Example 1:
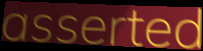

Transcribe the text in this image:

asserted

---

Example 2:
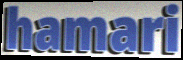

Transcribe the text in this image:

hamari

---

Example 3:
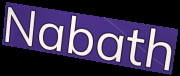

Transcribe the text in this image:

Nabath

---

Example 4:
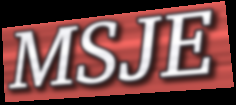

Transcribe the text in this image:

MSJE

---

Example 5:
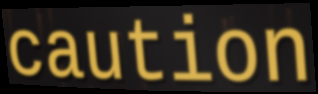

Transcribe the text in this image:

caution